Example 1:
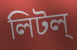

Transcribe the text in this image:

লিটল্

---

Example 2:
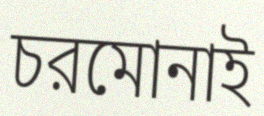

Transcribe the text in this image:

চরমোনাই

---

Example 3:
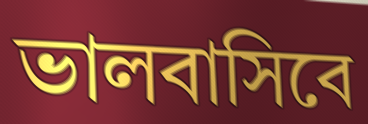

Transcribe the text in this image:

ভালবাসিবে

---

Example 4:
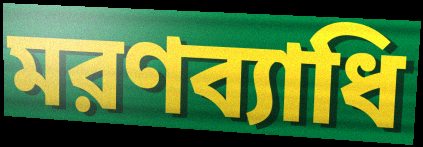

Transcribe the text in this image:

মরণব্যাধি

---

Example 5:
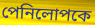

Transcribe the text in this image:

পেনিলোপকে